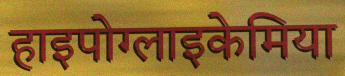
हाइपोग्लाइकेमिया